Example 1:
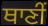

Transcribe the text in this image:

ਥਾਣੀਂ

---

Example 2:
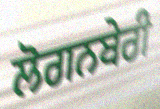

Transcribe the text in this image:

ਲੋਗਨਬੇਰੀ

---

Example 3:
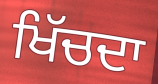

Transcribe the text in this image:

ਖਿੱਚਦਾ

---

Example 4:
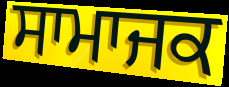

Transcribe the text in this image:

ਸਾਮਾਜਕ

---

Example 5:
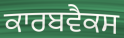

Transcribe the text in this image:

ਕਾਰਬਵੈਕਸ